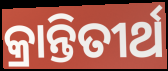
କ୍ରାନ୍ତିତୀର୍ଥ